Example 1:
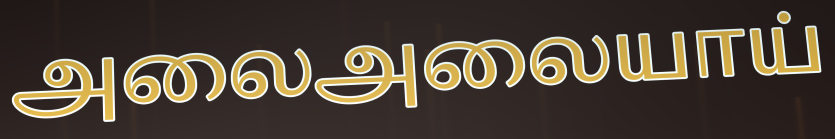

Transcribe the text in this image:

அலைஅலையாய்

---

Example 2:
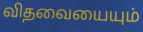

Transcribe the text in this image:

விதவையையும்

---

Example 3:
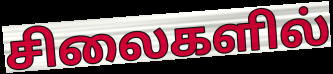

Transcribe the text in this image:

சிலைகளில்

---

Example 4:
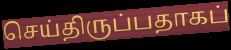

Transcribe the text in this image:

செய்திருப்பதாகப்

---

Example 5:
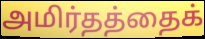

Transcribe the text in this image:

அமிர்தத்தைக்